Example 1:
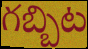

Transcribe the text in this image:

గబ్బిట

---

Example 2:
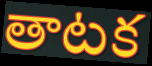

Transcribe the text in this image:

తాటక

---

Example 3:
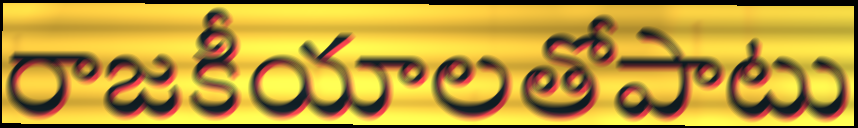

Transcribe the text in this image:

రాజకీయాలతోపాటు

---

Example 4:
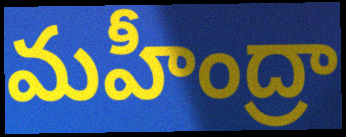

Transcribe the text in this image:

మహీంద్రా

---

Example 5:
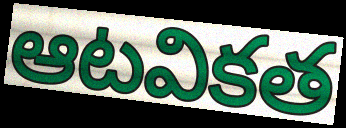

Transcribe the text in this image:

ఆటవికత